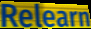
Relearn